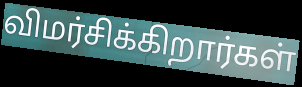
விமர்சிக்கிறார்கள்